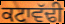
ਕਟਾਵੱਢੀ